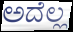
ಅದೆಲ್ಲ